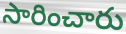
సారించారు